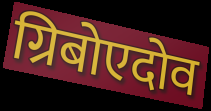
ग्रिबोएदोव